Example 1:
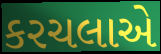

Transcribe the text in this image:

કરચલાએ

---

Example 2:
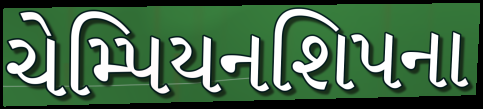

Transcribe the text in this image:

ચેમ્પિયનશિપના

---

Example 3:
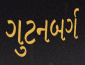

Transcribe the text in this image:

ગુટનબર્ગ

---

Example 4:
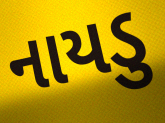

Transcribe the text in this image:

નાયડુ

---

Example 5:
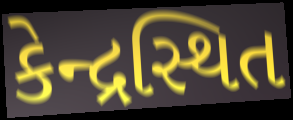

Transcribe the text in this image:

કેન્દ્રસ્થિત